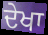
ਦੇਖਾ